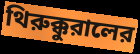
থিরুক্কুরালের